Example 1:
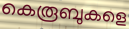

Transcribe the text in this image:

കെരൂബുകളെ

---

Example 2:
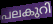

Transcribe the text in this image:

പലകുറി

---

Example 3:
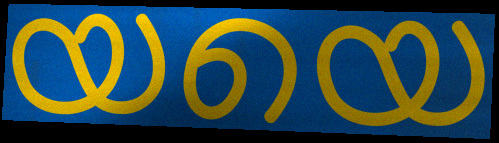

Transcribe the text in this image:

യയെ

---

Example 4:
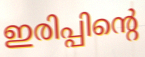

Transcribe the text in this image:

ഇരിപ്പിന്റെ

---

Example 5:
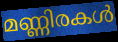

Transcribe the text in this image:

മണ്ണിരകൾ